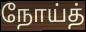
நோய்த்